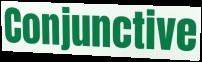
Conjunctive